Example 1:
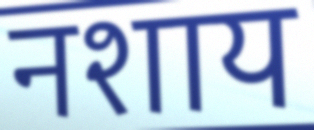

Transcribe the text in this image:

नशाय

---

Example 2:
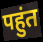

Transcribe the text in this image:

पहुंत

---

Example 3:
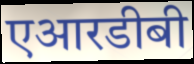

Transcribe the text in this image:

एआरडीबी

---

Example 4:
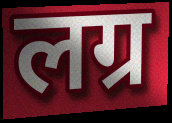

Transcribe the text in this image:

लग्र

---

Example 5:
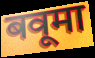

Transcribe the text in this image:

बवूमा